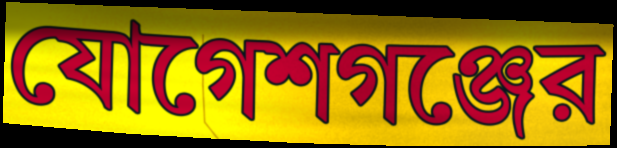
যোগেশগঞ্জের